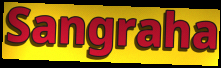
Sangraha